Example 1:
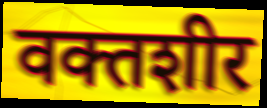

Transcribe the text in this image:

वक्तशीर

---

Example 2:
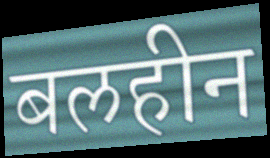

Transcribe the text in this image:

बलहीन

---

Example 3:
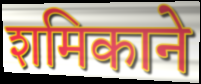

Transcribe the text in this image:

शमिकाने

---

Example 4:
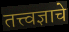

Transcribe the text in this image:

तत्त्वज्ञाचे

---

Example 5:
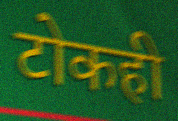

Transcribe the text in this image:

टोकही